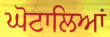
ਘੋਟਾਲਿਆਂ